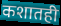
कशातही